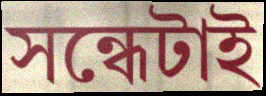
সন্ধেটাই